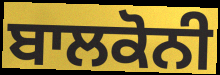
ਬਾਲਕੋਨੀ